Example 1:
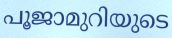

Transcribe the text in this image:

പൂജാമുറിയുടെ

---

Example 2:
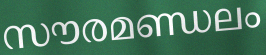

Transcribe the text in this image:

സൗരമണ്ഡലം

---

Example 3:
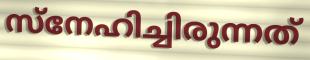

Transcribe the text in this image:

സ്നേഹിച്ചിരുന്നത്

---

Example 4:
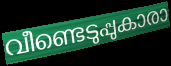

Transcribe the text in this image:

വീണ്ടെടുപ്പുകാരാ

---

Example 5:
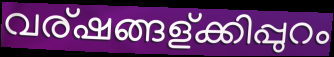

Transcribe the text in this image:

വര്ഷങ്ങള്ക്കിപ്പുറം